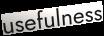
usefulness